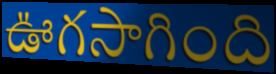
ఊగసాగింది